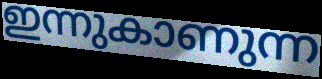
ഇന്നുകാണുന്ന